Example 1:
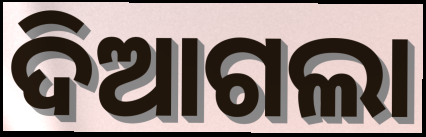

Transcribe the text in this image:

ଦିଆଗଲା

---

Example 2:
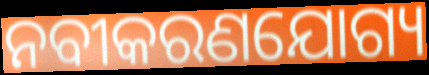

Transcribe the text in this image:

ନବୀକରଣଯୋଗ୍ୟ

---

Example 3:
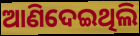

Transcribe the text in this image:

ଆଣିଦେଇଥିଲି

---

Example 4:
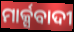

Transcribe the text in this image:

ମାର୍କ୍ସବାଦୀ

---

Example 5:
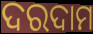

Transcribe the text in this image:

ଦରଦାମ